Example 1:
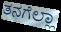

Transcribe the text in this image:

ತನಗೆಲ್ಲಾ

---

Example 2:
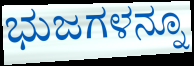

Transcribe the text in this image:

ಭುಜಗಳನ್ನೂ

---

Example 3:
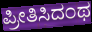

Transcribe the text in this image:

ಪ್ರೀತಿಸಿದಂಥ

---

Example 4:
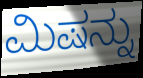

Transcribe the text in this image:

ಮಿಷನ್ನು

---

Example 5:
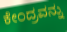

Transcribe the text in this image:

ಕೇಂದ್ರವನ್ನು